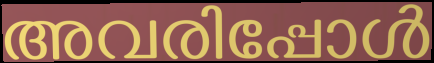
അവരിപ്പോൾ